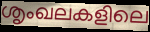
ശൃംഖലകളിലെ